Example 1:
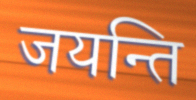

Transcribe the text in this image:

जयन्ति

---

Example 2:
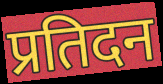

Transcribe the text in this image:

प्रतिदन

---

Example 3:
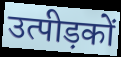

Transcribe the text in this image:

उत्पीड़कों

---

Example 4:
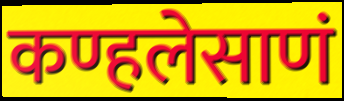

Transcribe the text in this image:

कण्हलेसाणं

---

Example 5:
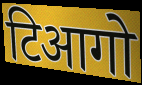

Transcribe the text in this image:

टिआगो